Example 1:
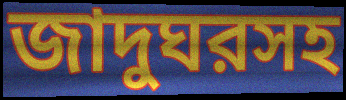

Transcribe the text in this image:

জাদুঘরসহ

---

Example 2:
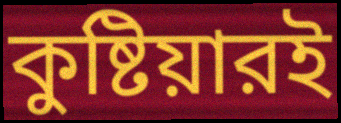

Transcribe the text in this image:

কুষ্টিয়ারই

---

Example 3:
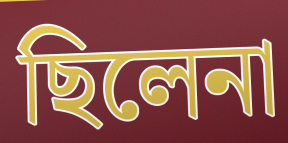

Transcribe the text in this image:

ছিলেনা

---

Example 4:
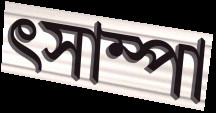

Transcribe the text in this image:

ৎসাম্পা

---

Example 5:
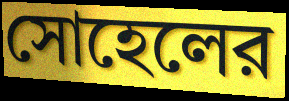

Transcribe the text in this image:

সোহেলের